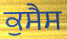
ਕੁਸੈਸ